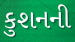
કુશનની